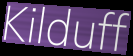
Kilduff